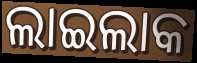
ଲାଇଲାକ